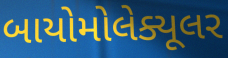
બાયોમોલેક્યૂલર